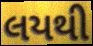
લયથી